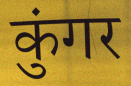
कुंगर